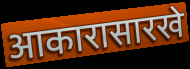
आकारासारखे